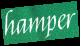
hamper